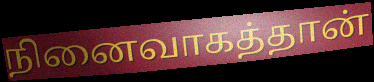
நினைவாகத்தான்